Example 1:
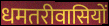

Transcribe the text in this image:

धमतरीवासियों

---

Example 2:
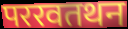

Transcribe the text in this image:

पररवतथन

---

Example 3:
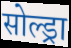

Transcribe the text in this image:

सोल्ड्रा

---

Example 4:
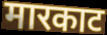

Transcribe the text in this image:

मारकाट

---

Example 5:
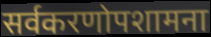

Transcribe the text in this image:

सर्वकरणोपशामना